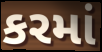
કરમાં